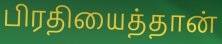
பிரதியைத்தான்